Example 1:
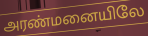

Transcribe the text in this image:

அரண்மனையிலே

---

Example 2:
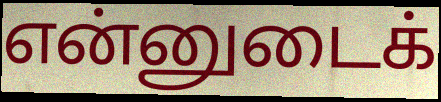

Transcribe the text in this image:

என்னுடைக்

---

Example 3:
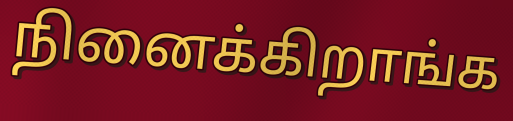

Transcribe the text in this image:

நினைக்கிறாங்க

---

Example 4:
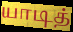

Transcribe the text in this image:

யாடித்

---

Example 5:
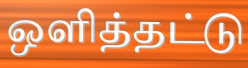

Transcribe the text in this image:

ஒளித்தட்டு